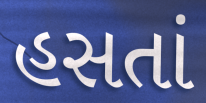
હસતાં